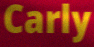
Carly